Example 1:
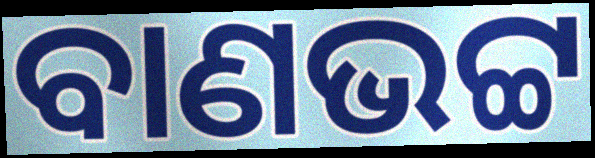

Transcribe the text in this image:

ବାଣଭଟ୍ଟ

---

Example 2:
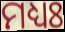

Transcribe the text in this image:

ମଧ୍ୟଃ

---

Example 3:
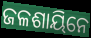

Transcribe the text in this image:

ଜଳଶାୟିନେ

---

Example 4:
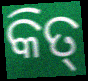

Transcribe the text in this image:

କିତ୍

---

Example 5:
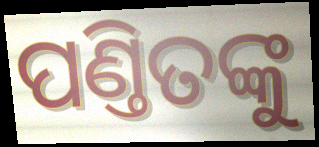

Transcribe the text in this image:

ପଣ୍ତିତଙ୍କୁ